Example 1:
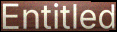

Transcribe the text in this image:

Entitled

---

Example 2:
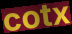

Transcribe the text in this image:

cotx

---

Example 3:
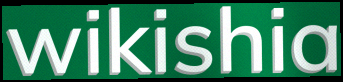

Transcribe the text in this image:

wikishia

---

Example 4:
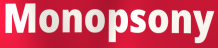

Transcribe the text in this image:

Monopsony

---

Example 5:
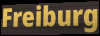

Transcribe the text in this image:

Freiburg